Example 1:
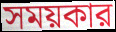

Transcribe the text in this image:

সময়কার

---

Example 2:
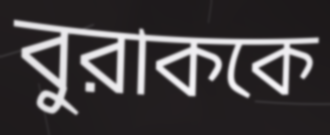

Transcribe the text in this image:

বুরাককে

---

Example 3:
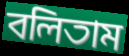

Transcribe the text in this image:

বলিতাম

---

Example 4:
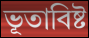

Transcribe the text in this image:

ভূতাবিষ্ট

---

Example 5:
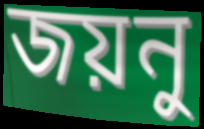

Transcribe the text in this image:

জয়নু